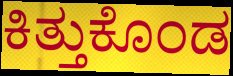
ಕಿತ್ತುಕೊಂಡ